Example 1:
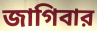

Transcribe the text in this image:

জাগিবার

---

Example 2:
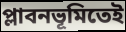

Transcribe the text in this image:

প্লাবনভূমিতেই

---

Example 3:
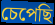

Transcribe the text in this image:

চেপেছি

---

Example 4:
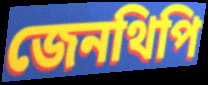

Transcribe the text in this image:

জেনথিপি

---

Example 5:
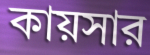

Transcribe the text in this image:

কায়সার